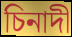
চিনাদী